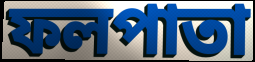
ফলপাতা